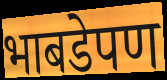
भाबडेपण